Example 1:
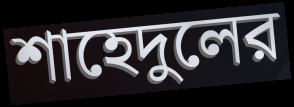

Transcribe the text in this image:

শাহেদুলের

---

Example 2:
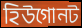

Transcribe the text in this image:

হিউগোনট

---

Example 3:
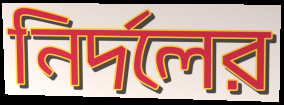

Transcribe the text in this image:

নির্দলের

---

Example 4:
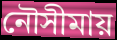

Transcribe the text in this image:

নৌসীমায়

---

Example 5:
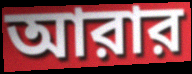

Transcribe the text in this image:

আরার